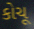
કોચૂ